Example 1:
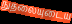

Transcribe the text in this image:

நுதலையுடைய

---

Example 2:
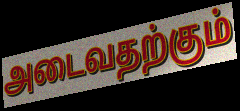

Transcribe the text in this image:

அடைவதற்கும்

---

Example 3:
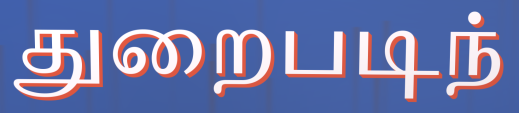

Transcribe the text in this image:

துறைபடிந்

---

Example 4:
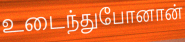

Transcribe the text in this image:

உடைந்துபோனான்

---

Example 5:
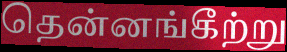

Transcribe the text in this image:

தென்னங்கீற்று